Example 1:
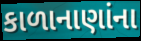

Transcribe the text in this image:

કાળાનાણાંના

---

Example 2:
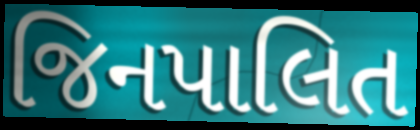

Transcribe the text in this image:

જિનપાલિત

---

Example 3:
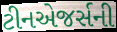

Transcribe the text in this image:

ટીનએજર્સની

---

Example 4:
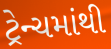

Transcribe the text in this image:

ટ્રેન્ચમાંથી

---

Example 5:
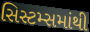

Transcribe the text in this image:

સિસ્ટમ્સમાંથી